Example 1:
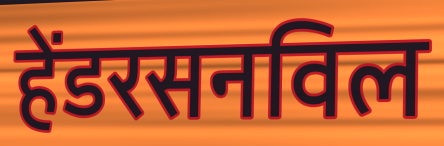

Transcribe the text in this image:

हेंडरसनविल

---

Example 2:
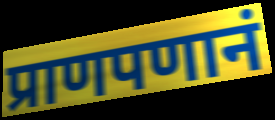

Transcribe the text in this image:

प्राणपणानं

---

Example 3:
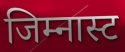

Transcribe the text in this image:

जिम्नास्ट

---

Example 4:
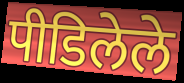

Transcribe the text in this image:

पीडिलेले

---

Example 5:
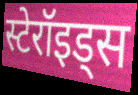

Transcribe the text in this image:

स्टेरॉइड्स